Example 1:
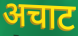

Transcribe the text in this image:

अचाट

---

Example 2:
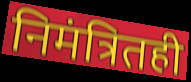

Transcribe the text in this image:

निमंत्रितही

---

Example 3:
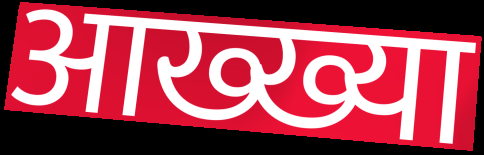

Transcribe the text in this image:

आख्ख्या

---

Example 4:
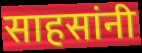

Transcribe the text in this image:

साहसांनी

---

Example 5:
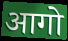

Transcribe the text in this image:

आगो